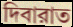
দিবারাত